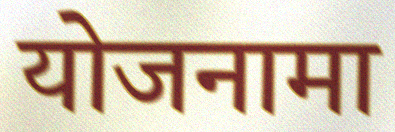
योजनामा